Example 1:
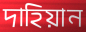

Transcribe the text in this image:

দাহিয়ান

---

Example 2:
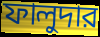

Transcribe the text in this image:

ফালুদার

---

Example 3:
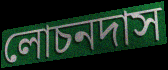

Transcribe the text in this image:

লোচনদাস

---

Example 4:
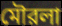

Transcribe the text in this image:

মৌরলা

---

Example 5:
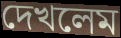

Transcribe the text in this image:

দেখলেম